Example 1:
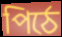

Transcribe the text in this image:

পিঠে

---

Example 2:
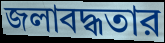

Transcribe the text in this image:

জলাবদ্ধতার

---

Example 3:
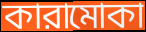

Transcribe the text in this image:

কারামোকা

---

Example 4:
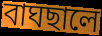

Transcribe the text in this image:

বাঘছালে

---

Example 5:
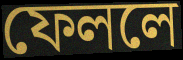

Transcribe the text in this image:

ফেললে